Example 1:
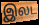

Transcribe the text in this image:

இலட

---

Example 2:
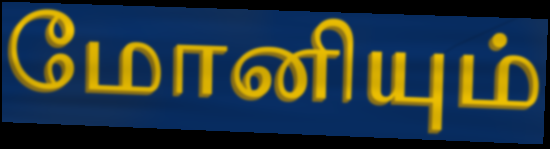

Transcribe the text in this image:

மோனியும்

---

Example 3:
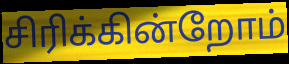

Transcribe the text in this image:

சிரிக்கின்றோம்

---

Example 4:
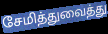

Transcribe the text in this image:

சேமித்துவைத்து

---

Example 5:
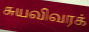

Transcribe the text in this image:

சுயவிவரக்